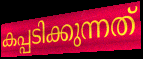
കപ്പടിക്കുന്നത്